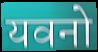
यवनो